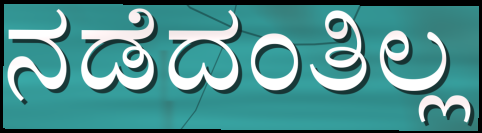
ನಡೆದಂತಿಲ್ಲ